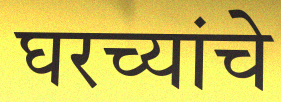
घरच्यांचे